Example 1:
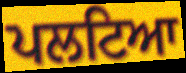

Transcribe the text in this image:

ਪਲਟਿਆ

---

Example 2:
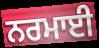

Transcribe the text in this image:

ਨਰਮਾਈ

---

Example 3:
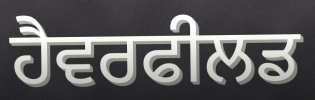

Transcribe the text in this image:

ਹੈਵਰਫੀਲਡ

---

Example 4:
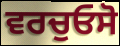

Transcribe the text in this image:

ਵਰਚੁਓਸੋ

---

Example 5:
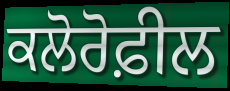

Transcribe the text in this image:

ਕਲੋਰੋਫ਼ੀਲ